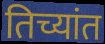
तिच्यांत